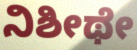
ನಿಶೀಥೇ